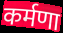
कर्मणा